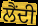
ਲੈਂਦੀ